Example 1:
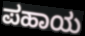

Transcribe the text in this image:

ಪಹಾಯ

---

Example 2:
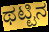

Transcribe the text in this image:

ಥಟ್ಟಿನ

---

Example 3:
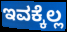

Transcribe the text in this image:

ಇವಕ್ಕೆಲ್ಲ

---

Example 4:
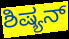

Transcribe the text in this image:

ಶಿಷ್ಯನ್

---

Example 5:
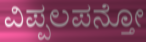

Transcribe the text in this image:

ವಿಪ್ಪಲಪನ್ತೋ